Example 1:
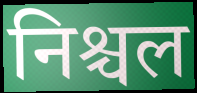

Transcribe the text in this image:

निश्चल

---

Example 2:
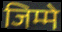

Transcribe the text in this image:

जिम्मे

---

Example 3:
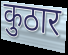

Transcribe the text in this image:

कुठार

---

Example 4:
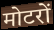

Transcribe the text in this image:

मोटरों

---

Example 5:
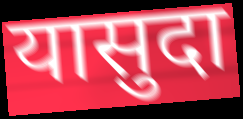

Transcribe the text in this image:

यासुदा